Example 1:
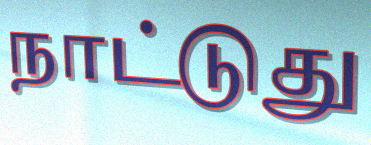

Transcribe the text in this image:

நாட்டுது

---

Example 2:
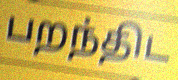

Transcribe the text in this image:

பறந்திட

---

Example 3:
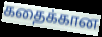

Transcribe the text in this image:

கதைக்கான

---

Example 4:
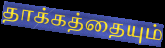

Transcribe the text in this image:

தாக்கத்தையும்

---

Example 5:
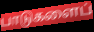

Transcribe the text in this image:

பாடுகளைப்